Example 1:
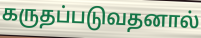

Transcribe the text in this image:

கருதப்படுவதனால்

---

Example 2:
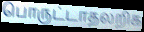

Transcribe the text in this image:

பொருட்டாதலறிக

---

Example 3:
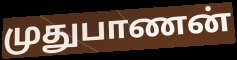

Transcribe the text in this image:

முதுபாணன்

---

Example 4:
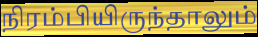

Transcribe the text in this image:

நிரம்பியிருந்தாலும்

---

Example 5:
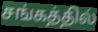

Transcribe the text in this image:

சங்கத்தில்